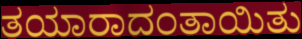
ತಯಾರಾದಂತಾಯಿತು